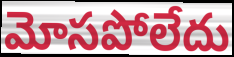
మోసపోలేదు